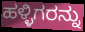
ಹಳ್ಳಿಗರನ್ನು